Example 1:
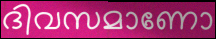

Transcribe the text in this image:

ദിവസമാണോ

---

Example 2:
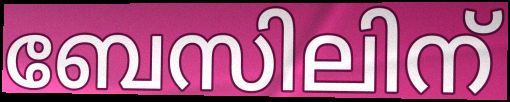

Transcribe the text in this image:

ബേസിലിന്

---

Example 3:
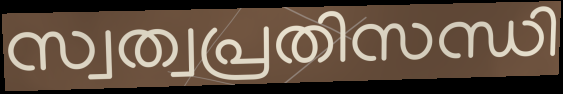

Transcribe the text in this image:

സ്വത്വപ്രതിസന്ധി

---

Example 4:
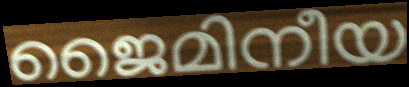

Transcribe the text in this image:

ജൈമിനീയ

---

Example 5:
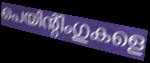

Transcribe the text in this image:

പെയിന്റിംഗുകളെ